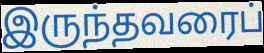
இருந்தவரைப்